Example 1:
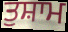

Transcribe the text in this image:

ਤੁਸ਼ਾਮ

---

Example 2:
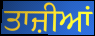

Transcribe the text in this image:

ਤਾਜ਼ੀਆਂ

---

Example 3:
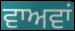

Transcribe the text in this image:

ਵਾਅਵਾਂ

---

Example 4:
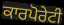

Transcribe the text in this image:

ਕਾਰਪੋਰੇਟੀ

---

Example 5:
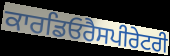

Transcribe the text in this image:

ਕਾਰਡਿਓਰੈਸਪੀਰੇਟਰੀ